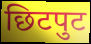
छिटपुट